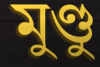
মুণ্ডু